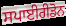
ਸਪਾਈਰੀਡੋਨ